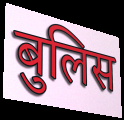
बुलिस